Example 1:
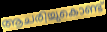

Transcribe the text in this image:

ആചരിച്ചുകൊണ്ട്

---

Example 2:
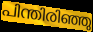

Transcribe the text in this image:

പിന്തിരിഞ്ഞു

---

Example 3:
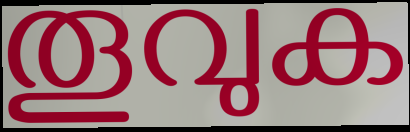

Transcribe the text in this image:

തൂവുക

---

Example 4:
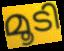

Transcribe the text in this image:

മൂടി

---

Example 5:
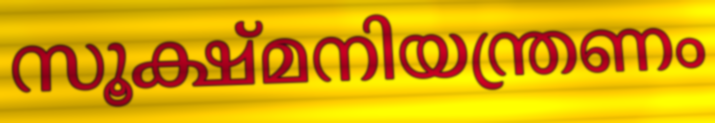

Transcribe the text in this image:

സൂക്ഷ്മനിയന്ത്രണം